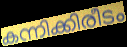
കന്നിക്കിരീടം